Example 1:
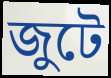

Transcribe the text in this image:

জুটে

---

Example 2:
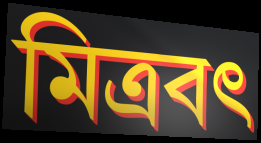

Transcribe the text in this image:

মিত্রবৎ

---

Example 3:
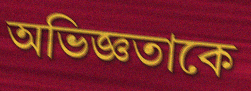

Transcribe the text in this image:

অভিজ্ঞতাকে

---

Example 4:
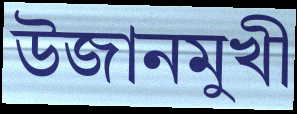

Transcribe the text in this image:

উজানমুখী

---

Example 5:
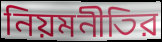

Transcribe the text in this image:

নিয়মনীতির